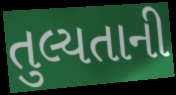
તુલ્યતાની